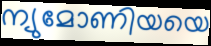
ന്യുമോണിയയെ